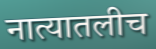
नात्यातलीच